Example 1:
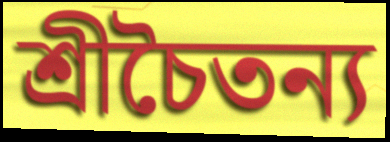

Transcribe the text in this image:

শ্রীচৈতন্য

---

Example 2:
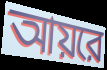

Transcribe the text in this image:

আয়রে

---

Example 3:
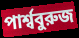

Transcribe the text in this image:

পার্শ্ববুরুজ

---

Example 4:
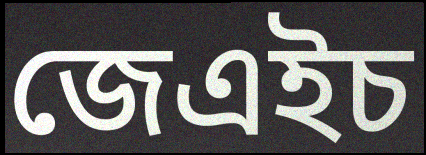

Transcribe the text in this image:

জেএইচ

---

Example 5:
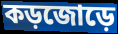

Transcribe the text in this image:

কড়জোড়ে